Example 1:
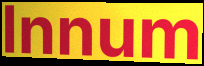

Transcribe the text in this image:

Innum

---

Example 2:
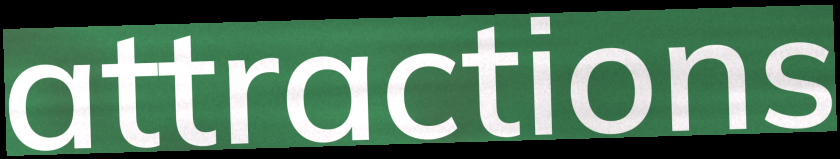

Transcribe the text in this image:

attractions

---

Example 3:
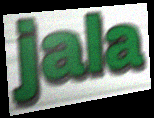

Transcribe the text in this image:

jala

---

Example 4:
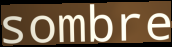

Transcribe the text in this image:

sombre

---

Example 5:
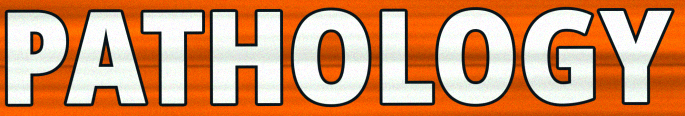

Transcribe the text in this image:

PATHOLOGY